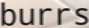
burrs